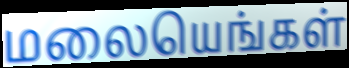
மலையெங்கள்